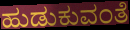
ಹುಡುಕುವಂತೆ